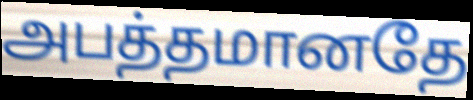
அபத்தமானதே